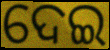
ଦେଇ